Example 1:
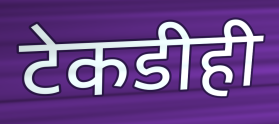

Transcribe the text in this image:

टेकडीही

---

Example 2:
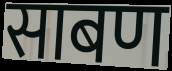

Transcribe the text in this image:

साबण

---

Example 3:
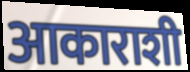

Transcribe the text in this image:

आकाराशी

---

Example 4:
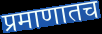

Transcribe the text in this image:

प्रमाणातच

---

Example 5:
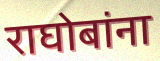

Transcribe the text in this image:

राघोबांना